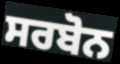
ਸਰਬੋਨ